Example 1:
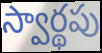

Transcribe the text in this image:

స్వార్థపు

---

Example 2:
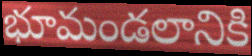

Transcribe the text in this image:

భూమండలానికి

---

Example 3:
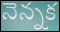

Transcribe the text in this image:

నెన్నక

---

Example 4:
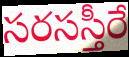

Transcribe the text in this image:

సరసస్తీరే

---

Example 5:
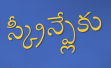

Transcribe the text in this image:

స్క్రీన్ప్లేకు